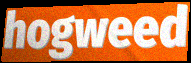
hogweed